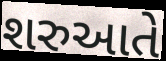
શરુઆતે